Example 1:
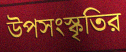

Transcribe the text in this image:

উপসংস্কৃতির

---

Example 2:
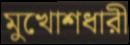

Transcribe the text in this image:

মুখোশধারী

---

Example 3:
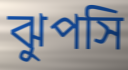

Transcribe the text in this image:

ঝুপসি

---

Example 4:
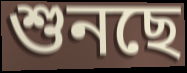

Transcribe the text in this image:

শুনছে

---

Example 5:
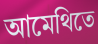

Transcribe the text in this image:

আমেথিতে